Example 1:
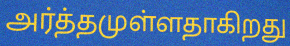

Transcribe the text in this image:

அர்த்தமுள்ளதாகிறது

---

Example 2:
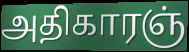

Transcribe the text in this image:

அதிகாரஞ்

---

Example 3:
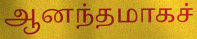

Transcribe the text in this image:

ஆனந்தமாகச்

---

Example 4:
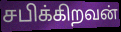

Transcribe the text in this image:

சபிக்கிறவன்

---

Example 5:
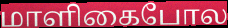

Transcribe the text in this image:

மாளிகைபோல